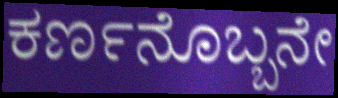
ಕರ್ಣನೊಬ್ಬನೇ